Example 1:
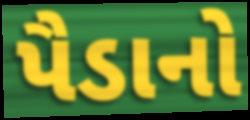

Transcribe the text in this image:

પૈડાનો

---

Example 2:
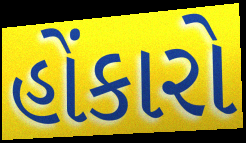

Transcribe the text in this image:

હોંકારો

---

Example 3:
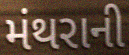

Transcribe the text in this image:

મંથરાની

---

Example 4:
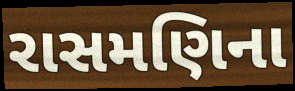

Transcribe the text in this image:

રાસમણિના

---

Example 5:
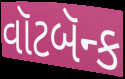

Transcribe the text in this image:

વૉટબૅન્ક